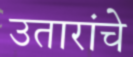
उतारांचे